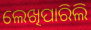
ଲେଖିପାରିଲି